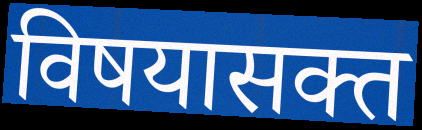
विषयासक्त